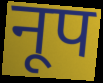
नूप